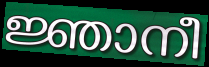
ജ്ഞാനീ